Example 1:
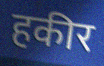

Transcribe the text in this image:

हकीर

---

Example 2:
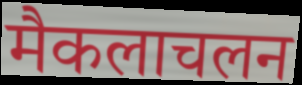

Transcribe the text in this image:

मैकलाचलन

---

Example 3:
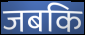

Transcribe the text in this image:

जबकि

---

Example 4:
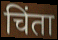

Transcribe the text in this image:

चिंता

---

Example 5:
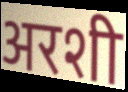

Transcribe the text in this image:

अरशी